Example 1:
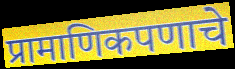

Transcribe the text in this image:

प्रामाणिकपणाचे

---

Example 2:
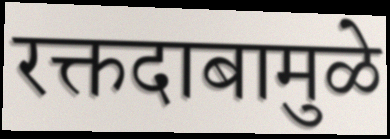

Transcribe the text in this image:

रक्तदाबामुळे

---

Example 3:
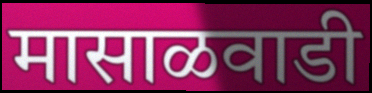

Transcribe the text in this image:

मासाळवाडी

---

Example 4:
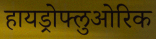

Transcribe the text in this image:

हायड्रोफ्लुओरिक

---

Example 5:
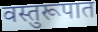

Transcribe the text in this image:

वस्तुरूपात